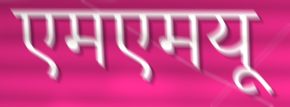
एमएमयू